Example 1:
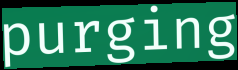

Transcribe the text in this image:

purging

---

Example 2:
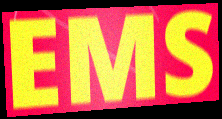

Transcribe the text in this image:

EMS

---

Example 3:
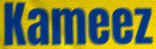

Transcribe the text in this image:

Kameez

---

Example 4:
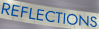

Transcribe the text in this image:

REFLECTIONS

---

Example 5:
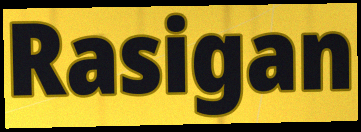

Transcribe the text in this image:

Rasigan